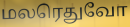
மலரெதுவோ